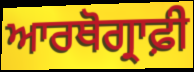
ਆਰਥੋਗ੍ਰਾਫ਼ੀ